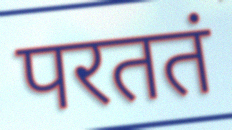
परततं